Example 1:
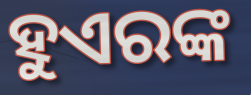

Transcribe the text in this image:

ହୁଏରଙ୍କ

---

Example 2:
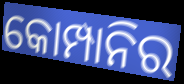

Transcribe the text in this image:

କୋମ୍ପାନିର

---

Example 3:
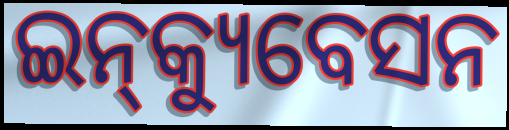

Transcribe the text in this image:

ଇନ୍‌କ୍ୟୁବେସନ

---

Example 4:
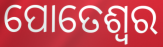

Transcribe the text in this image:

ପୋତେଶ୍ବର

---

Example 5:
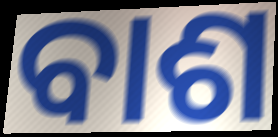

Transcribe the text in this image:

ବାଶ